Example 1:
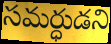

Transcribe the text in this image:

సమర్ధుడని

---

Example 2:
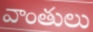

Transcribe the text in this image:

వాంతులు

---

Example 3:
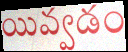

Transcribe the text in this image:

యివ్వడం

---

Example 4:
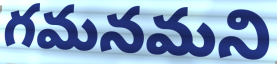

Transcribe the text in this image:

గమనమని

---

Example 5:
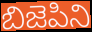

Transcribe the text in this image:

బిజెపిని